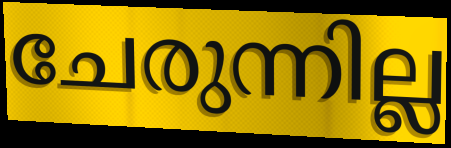
ചേരുന്നില്ല